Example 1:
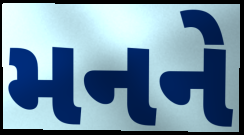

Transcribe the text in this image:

મનને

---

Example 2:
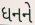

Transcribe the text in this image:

ધનને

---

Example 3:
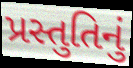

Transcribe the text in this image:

પ્રસ્તુતિનું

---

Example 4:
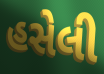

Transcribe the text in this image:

હસેલી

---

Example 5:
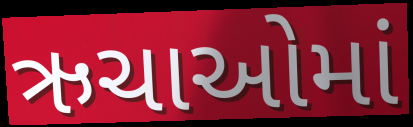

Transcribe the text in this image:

ઋચાઓમાં